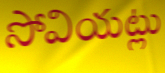
సోవియట్లు